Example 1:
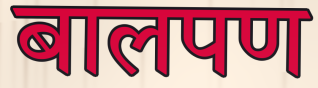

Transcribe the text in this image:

बालपण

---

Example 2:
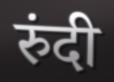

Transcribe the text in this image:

रुंदी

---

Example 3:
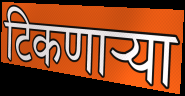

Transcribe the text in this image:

टिकणाऱ्या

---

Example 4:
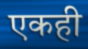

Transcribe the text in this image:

एकही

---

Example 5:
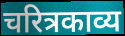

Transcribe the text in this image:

चरित्रकाव्य